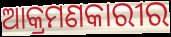
ଆକ୍ରମଣକାରୀର